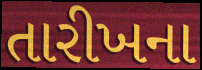
તારીખના